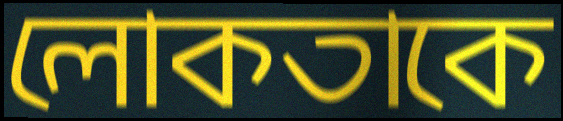
লোকতাকে